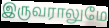
இருவராலுமே